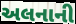
અલનાની